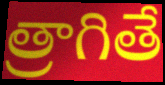
త్రాగితే